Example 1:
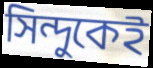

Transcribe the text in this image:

সিন্দুকেই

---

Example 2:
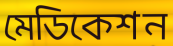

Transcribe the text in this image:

মেডিকেশন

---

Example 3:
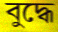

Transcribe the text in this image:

বুদ্ধে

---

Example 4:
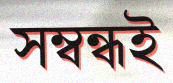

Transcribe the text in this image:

সম্বন্ধই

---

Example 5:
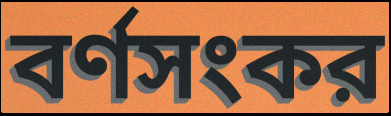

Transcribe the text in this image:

বর্ণসংকর